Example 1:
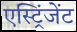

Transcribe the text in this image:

एस्ट्रिंजेंट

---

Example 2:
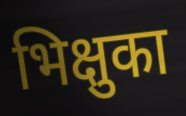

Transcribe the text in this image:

भिक्षुका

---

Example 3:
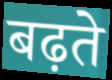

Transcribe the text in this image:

बढ़ते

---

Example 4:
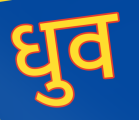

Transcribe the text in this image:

धुव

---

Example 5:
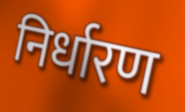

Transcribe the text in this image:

निर्धारण